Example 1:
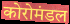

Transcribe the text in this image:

कोरोमंडल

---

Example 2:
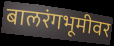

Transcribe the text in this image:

बालरंगभूमीवर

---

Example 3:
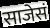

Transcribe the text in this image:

साजेसं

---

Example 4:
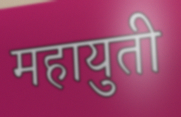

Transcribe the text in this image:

महायुती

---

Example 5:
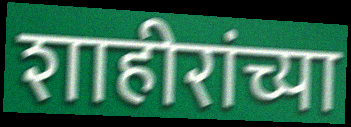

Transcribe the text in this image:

शाहीरांच्या